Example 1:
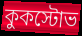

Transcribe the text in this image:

কুকস্টোভ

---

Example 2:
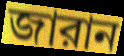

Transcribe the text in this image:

জারান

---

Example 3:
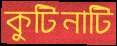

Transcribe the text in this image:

কুটিনাটি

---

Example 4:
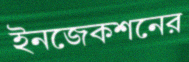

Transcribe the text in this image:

ইনজেকশনের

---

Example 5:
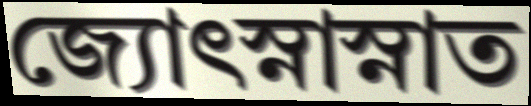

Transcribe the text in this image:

জ্যোৎস্নাস্নাত